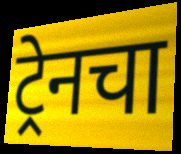
ट्रेनचा